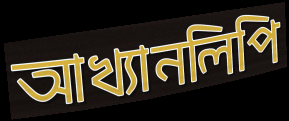
আখ্যানলিপি